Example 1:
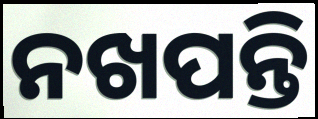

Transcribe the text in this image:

ନଖପନ୍ତି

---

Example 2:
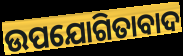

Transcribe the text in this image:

ଉପଯୋଗିତାବାଦ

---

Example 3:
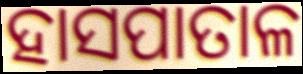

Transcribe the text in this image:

ହାସପାତାଳ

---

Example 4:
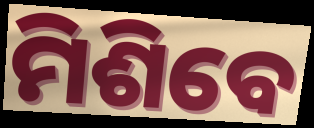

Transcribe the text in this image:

ମିଶିବେ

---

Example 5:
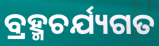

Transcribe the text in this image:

ବ୍ରହ୍ମଚର୍ଯ୍ୟଗତ